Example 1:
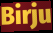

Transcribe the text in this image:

Birju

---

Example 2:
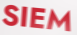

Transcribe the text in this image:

SIEM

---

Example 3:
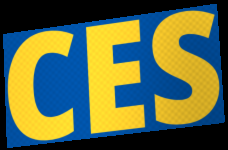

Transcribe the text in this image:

CES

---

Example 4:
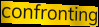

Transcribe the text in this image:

confronting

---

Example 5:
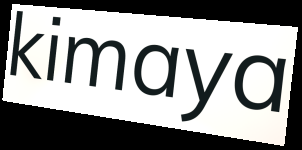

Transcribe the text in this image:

kimaya